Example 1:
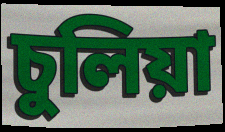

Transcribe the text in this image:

চুলিয়া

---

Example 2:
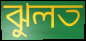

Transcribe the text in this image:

ঝুলত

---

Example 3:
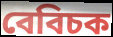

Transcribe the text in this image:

বেবিচক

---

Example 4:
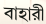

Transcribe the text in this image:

বাহারী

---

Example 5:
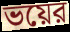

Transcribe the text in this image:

ভয়ের